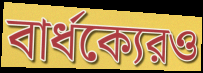
বার্ধক্যেরও